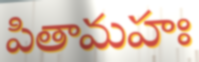
పితామహః